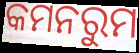
କମନରୁମ